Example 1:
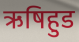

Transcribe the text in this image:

ऋषिहुड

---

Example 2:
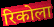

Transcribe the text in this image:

रिकोला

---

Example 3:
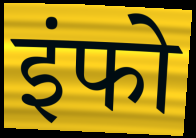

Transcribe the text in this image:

इंफो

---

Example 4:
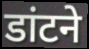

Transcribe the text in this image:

डांटने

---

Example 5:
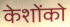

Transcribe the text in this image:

केशोंको